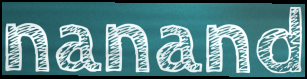
nanand